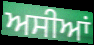
ਅਸੀਆਂ